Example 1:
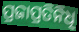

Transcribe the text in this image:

ପ୍ରଜାପ୍ରତିନିଧି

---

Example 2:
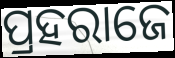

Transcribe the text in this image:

ପ୍ରହରାଜେ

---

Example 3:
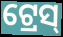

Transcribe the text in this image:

ଟ୍ରେସ୍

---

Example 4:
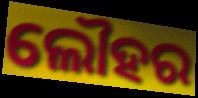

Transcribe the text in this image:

ଲୌହର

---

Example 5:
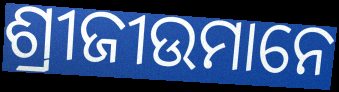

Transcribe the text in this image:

ଶ୍ରୀଜୀଉମାନେ